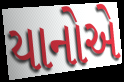
યાનોએ